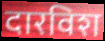
दारविश